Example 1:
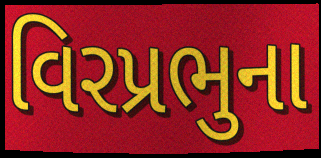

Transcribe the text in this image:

વિરપ્રભુના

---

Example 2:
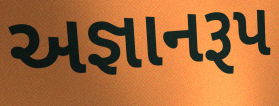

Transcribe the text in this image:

અજ્ઞાનરૂપ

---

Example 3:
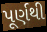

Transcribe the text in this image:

પૂર્ણથી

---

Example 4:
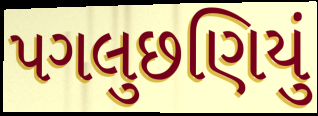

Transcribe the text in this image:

પગલુછણિયું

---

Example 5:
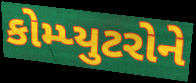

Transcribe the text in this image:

કોમ્પ્યુટરોને